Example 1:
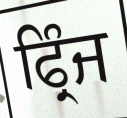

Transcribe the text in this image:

ਫ੍ਰਿੰਜ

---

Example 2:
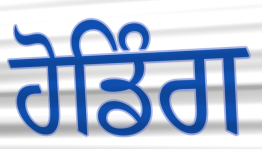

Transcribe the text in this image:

ਹੋਡਿੰਗ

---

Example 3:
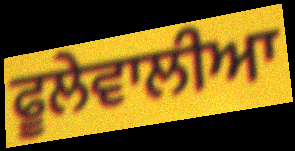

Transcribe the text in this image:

ਫੂਲੇਵਾਲੀਆ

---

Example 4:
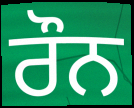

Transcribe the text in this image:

ਰੌਨ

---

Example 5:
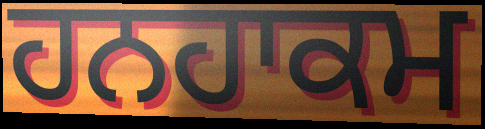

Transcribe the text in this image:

ਹਨਹਾਕਮ